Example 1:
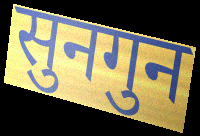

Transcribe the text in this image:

सुनगुन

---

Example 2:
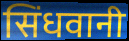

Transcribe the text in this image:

सिंधवानी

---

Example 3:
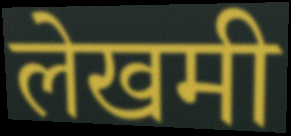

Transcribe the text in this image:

लेखमी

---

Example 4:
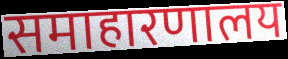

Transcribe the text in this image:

समाहारणालय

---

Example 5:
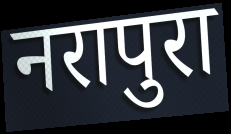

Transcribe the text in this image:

नरापुरा